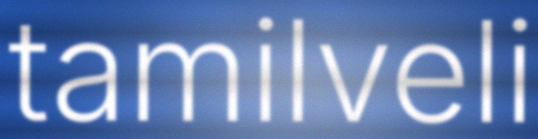
tamilveli